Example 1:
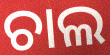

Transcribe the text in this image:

ଚାଲ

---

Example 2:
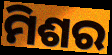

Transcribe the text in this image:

ମିଶର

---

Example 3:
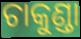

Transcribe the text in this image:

ଚାକୁଣ୍ଡା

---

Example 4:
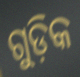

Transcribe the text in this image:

ଗୁଡ଼ିକ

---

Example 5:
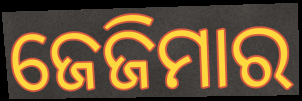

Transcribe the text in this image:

ଜେଜିମାର